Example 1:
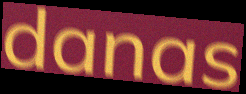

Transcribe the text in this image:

danas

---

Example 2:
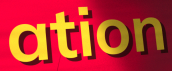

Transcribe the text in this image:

ation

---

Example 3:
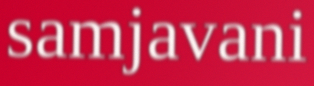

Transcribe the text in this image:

samjavani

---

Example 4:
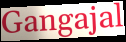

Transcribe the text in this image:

Gangajal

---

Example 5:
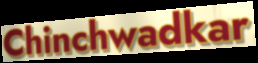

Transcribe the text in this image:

Chinchwadkar